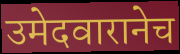
उमेदवारानेच